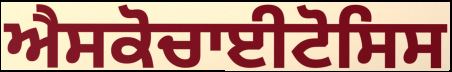
ਐਸਕੋਚਾਈਟੋਸਿਸ